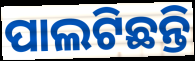
ପାଲଟିଛନ୍ତି